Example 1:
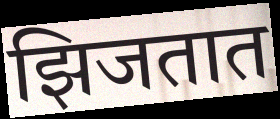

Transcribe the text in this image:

झिजतात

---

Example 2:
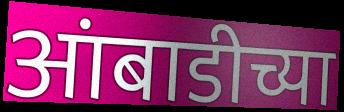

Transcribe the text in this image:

आंबाडीच्या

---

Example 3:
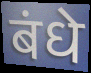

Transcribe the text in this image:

बंधे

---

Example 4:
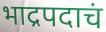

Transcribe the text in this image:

भाद्रपदाचं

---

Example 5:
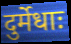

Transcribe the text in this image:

दुर्मेधाः